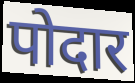
पोदार